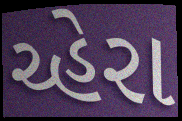
ચ્હેરા